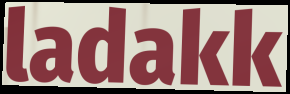
ladakk